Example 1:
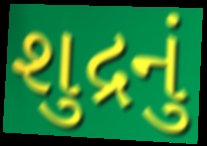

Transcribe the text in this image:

શુદ્રનું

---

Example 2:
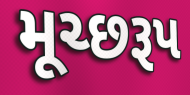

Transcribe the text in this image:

મૂચ્છરૂપ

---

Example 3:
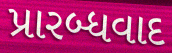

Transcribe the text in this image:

પ્રારબ્ધવાદ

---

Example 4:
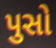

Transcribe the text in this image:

પુસો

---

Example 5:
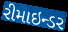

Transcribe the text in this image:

રીમાઇન્ડર